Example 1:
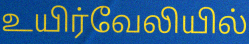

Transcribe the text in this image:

உயிர்வேலியில்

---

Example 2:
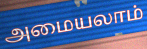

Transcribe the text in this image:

அமையலாம்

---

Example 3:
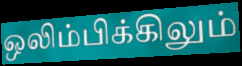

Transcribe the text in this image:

ஒலிம்பிக்கிலும்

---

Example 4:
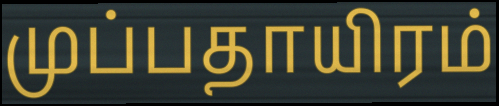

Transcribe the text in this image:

முப்பதாயிரம்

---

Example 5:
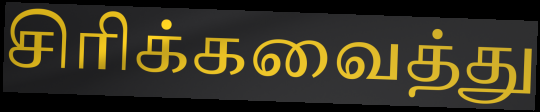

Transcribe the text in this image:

சிரிக்கவைத்து